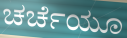
ಚರ್ಚೆಯೂ